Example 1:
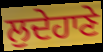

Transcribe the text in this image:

ਲੁਦੇਹਾਣੇ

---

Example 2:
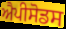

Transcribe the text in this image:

ਐਪੀਸੋਡਸ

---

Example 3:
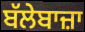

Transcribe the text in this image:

ਬੱਲੇਬਾਜ਼ਾ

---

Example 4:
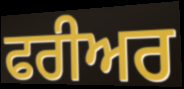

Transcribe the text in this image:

ਫਰੀਅਰ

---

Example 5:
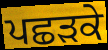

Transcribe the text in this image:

ਪਛੜਕੇ